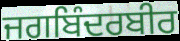
ਜਗਬਿੰਦਰਬੀਰ